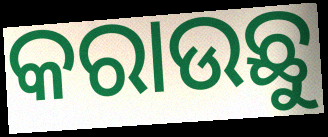
କରାଉଛୁ